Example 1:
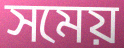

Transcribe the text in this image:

সমেয়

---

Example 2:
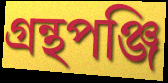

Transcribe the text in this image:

গ্রন্থপঞ্জি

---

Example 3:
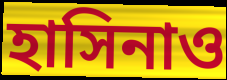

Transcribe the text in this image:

হাসিনাও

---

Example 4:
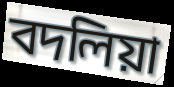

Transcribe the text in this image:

বদলিয়া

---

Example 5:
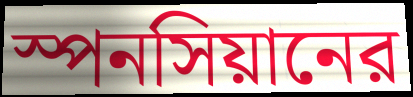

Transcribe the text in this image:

স্পনসিয়ানের